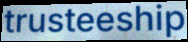
trusteeship